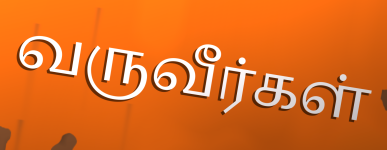
வருவீர்கள்